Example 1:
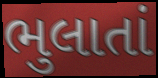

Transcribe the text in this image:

ભુલાતાં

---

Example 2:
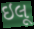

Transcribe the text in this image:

ઇલૂ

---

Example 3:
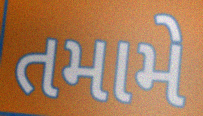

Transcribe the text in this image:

તમામે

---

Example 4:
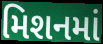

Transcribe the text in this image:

મિશનમાં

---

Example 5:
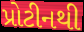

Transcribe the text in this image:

પ્રોટીનથી